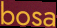
bosa